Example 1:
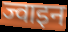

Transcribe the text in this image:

ज्‍वाइन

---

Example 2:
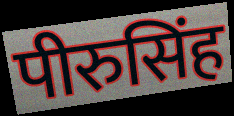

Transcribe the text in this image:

पीरुसिंह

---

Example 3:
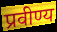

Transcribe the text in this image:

प्रवीण्य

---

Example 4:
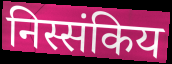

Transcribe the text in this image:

निस्संकिय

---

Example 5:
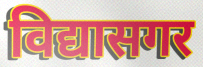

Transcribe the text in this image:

विद्यासगर